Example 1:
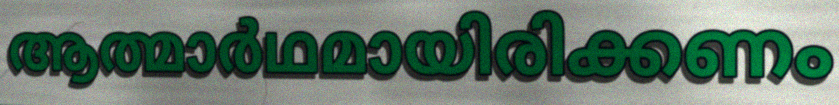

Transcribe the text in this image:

ആത്മാർഥമായിരിക്കണം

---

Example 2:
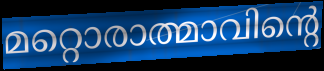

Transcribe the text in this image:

മറ്റൊരാത്മാവിന്റെ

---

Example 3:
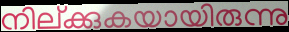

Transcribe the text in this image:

നില്ക്കുകയായിരുന്നു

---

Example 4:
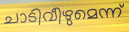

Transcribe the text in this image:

ചാടിവീഴുമെന്ന്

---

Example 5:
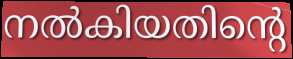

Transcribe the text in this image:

നൽകിയതിന്റെ